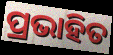
ପ୍ରଭାହିତ